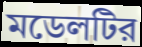
মডেলটির